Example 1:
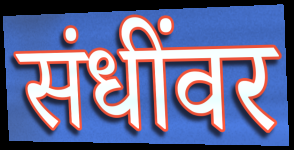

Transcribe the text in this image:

संधींवर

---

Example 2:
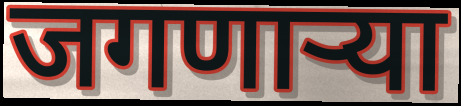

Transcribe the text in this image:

जगणाऱ्या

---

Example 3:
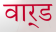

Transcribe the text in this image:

वार्ड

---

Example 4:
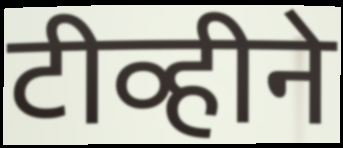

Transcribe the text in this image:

टीव्हीने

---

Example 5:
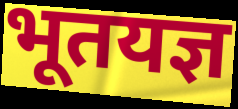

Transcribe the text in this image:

भूतयज्ञ